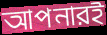
আপনারই